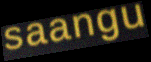
saangu